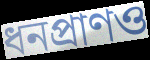
ধনপ্রাণও